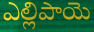
ఎల్లిపాయె